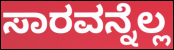
ಸಾರವನ್ನೆಲ್ಲ